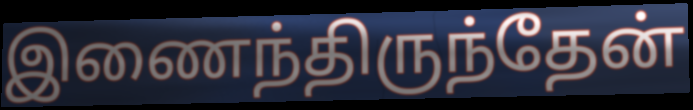
இணைந்திருந்தேன்